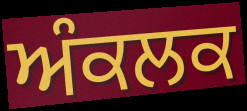
ਅੰਕਲਕ